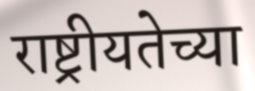
राष्ट्रीयतेच्या